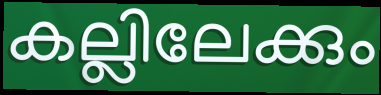
കല്ലിലേക്കും